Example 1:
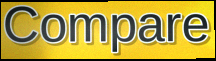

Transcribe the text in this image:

Compare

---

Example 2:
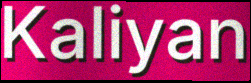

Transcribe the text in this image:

Kaliyan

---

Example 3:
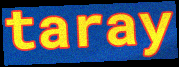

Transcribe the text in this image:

taray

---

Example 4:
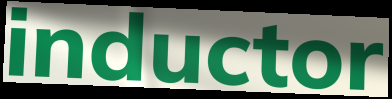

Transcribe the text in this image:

inductor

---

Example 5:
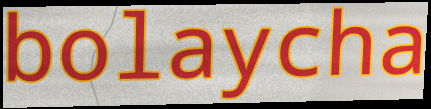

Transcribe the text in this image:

bolaycha